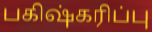
பகிஷ்கரிப்பு